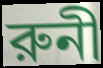
রুনী